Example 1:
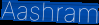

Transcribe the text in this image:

Aashram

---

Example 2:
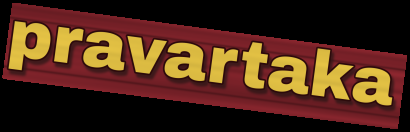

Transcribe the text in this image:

pravartaka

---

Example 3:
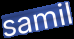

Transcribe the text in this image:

samil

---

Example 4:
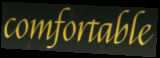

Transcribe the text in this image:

comfortable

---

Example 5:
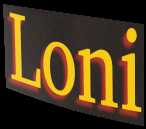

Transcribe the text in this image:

Loni